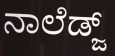
ನಾಲೆಡ್ಜ್